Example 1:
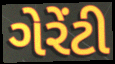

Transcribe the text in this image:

ગેરેંટી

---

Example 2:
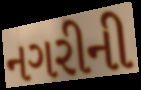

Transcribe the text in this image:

નગરીની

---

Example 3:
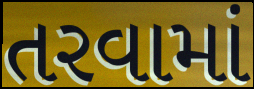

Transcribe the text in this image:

તરવામાં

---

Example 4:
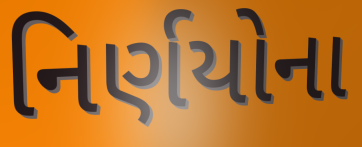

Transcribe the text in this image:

નિર્ણયોના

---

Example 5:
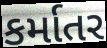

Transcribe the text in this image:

કર્માતર